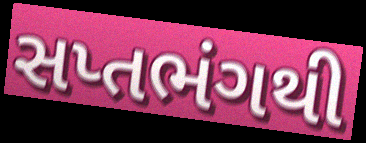
સપ્તભંગથી